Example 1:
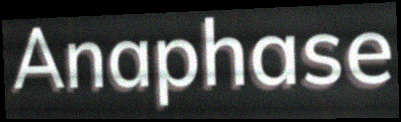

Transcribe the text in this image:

Anaphase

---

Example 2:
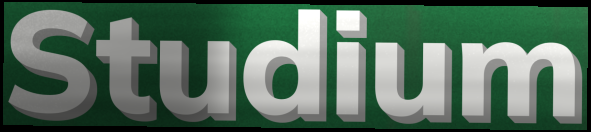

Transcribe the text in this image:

Studium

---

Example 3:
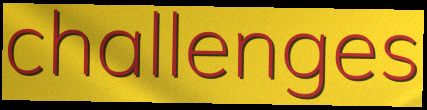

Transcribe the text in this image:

challenges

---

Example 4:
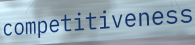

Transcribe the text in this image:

competitiveness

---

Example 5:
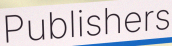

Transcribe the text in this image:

Publishers